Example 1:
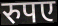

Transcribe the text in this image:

रुपए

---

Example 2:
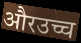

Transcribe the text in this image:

औरउच्च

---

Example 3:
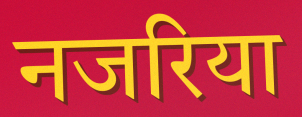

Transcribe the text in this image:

नजरिया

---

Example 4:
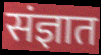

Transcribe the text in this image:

संज्ञात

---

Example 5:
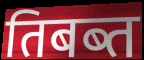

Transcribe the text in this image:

तिबब्त